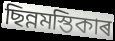
ছিন্নমস্তিকাৰ